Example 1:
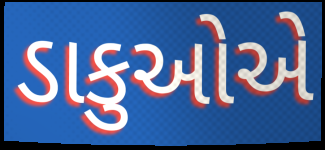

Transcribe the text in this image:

ડાકુઓએ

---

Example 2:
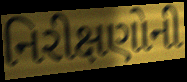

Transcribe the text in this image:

નિરીક્ષણોની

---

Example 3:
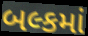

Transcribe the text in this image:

બલ્કમાં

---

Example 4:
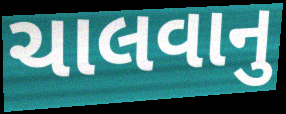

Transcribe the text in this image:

ચાલવાનુ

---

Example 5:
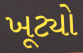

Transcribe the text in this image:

ખૂટ્યો